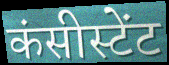
कंसीस्टेंट